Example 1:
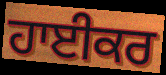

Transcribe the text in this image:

ਹਾਈਕਰ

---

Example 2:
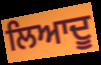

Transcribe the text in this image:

ਲਿਆਦੂ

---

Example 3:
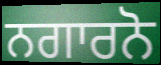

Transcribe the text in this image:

ਨਗਾਰਨੋ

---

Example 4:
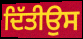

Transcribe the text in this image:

ਦਿੱਤੀਉਸ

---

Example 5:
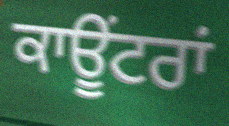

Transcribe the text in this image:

ਕਾਊਂਟਰਾਂ